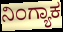
ನಿಂಗ್ಯಾಕ